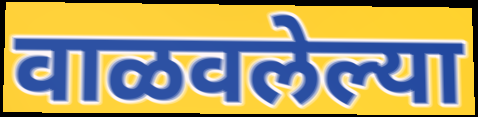
वाळवलेल्या